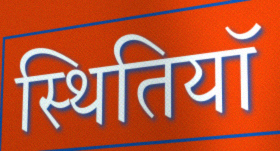
स्थितियॉ